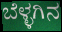
ಬೆಳ್ಳಗಿನ